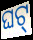
ଘଟ୍